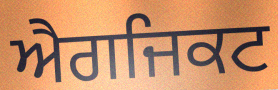
ਐਗਜਿਕਟ